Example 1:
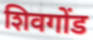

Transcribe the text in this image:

शिवगोंड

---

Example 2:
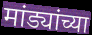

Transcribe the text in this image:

मांड्यांच्या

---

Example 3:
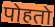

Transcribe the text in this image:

पोहतो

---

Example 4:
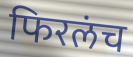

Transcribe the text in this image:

फिरलंच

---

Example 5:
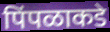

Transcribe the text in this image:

पिंपळाकडे